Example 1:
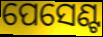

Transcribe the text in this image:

ପେସେଣ୍ଟ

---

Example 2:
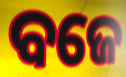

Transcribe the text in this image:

ବଜେ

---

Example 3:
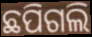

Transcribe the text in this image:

ଛପିଗଲି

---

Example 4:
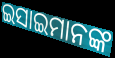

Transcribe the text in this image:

ଇସାଇମାନଙ୍କ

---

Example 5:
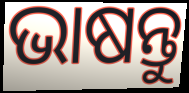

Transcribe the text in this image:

ଭାଷନ୍ତୁ